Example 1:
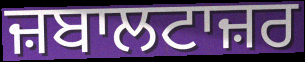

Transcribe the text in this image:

ਜ਼ਬਾਲਟਾਜ਼ਰ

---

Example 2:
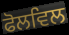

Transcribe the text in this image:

ਫੋਲਵਿਲ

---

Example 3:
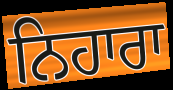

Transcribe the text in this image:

ਨਿਹਾਰਾ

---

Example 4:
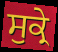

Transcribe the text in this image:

ਸੁਕ੍ਰੇ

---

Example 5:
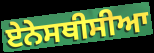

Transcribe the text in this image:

ਏਨੇਸਥੀਸੀਆ